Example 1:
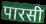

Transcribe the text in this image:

पारसी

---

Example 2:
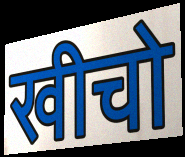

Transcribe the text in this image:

खीचो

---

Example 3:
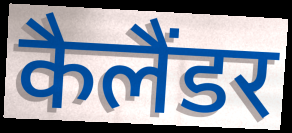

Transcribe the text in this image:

कैलैंडर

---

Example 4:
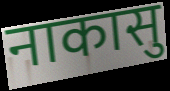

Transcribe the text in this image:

नाकासु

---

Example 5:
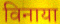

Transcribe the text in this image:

विनाया